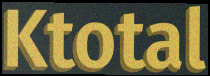
Ktotal